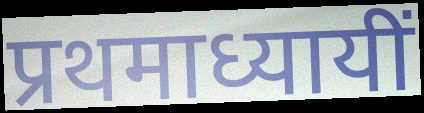
प्रथमाध्यायीं